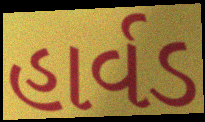
હાર્વડ